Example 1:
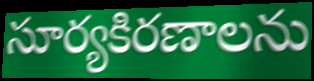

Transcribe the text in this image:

సూర్యకిరణాలను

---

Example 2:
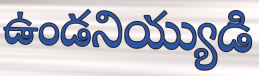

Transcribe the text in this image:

ఉండనియ్యుడి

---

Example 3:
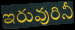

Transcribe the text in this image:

ఇరువురినీ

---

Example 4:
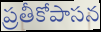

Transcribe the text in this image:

ప్రతీకోపాసన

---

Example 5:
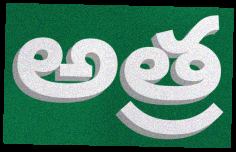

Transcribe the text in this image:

అత్ర